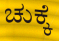
ಚುಕ್ಕೆ